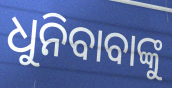
ଧୁନିବାବାଙ୍କୁ